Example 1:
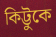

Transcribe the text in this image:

কিট্টুকে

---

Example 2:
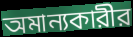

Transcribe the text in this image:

অমান্যকারীর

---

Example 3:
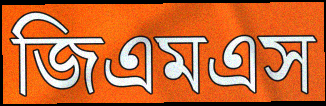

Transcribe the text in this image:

জিএমএস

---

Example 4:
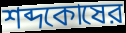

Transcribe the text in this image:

শব্দকোষের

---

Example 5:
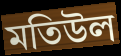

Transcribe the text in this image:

মতিউল